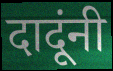
दादूंनी